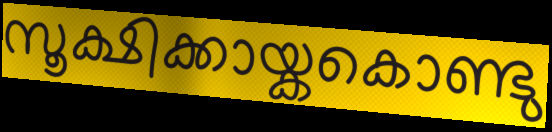
സൂക്ഷിക്കായ്കകൊണ്ടു